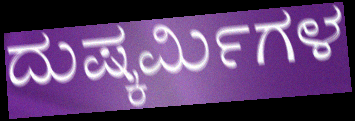
ದುಷ್ಕರ್ಮಿಗಳ